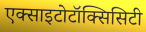
एक्साइटोटॉक्सिसिटी